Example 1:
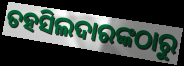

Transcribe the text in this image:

ତହସିଲଦାରଙ୍କଠାରୁ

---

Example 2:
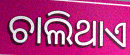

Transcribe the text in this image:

ଚାଲିଥାଏ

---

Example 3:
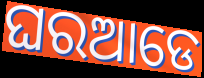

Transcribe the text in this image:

ଘରଆଡେ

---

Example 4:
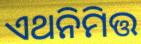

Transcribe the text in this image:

ଏଥନିମିତ୍ତ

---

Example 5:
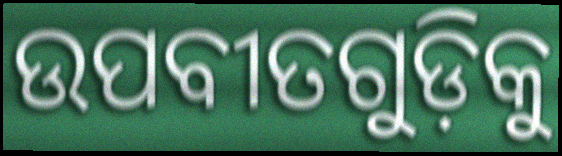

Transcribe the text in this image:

ଉପବୀତଗୁଡ଼ିକୁ